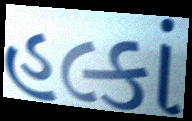
હલ્કાં